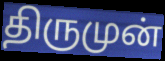
திருமுன்